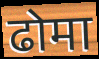
ढोमा